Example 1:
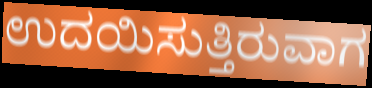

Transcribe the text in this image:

ಉದಯಿಸುತ್ತಿರುವಾಗ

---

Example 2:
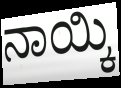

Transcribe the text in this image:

ನಾಯ್ಕಿ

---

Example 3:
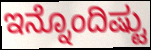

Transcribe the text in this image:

ಇನ್ನೊಂದಿಷ್ಟು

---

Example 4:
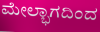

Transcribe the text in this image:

ಮೇಲ್ಭಾಗದಿಂದ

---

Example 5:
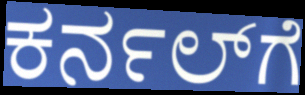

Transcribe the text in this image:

ಕರ್ನಲ್‌ಗೆ